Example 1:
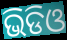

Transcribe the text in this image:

ଭିଡିଓ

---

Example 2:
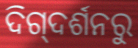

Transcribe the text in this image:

ଦିଗ୍‌ଦର୍ଶନରୁ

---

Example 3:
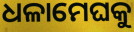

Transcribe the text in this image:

ଧଳାମେଘକୁ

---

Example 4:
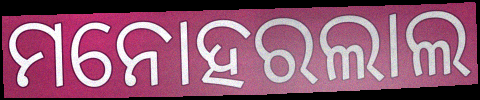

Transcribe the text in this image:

ମନୋହରଲାଲ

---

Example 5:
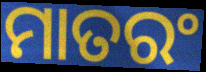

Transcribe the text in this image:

ମାତରଂ